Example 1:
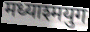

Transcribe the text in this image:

मध्याश्मयुग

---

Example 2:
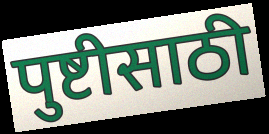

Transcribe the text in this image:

पुष्टीसाठी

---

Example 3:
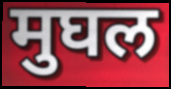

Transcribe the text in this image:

मुघल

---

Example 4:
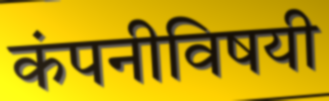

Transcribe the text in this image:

कंपनीविषयी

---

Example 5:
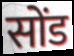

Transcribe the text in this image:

सोंड